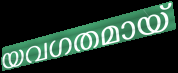
യവഗതമായ്